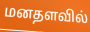
மனதளவில்